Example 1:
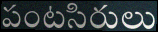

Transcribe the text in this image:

పంటసిరులు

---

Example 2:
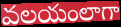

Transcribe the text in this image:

వలయంలాగా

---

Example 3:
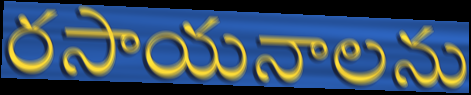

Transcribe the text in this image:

రసాయనాలను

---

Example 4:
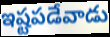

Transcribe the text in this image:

ఇష్టపడేవాడు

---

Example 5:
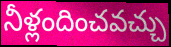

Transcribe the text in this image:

నీళ్లందించవచ్చు